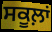
ਸਕੂਲ਼ਾਂ